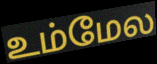
உம்மேல